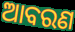
ଆବରଣ